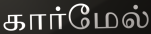
கார்மேல்